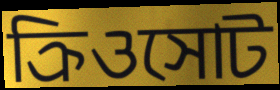
ক্রিওসোট